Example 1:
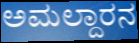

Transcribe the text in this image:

ಅಮಲ್ದಾರನ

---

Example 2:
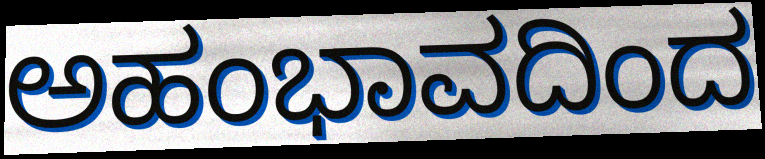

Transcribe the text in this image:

ಅಹಂಭಾವದಿಂದ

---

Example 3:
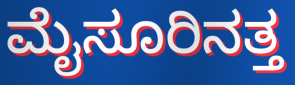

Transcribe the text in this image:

ಮೈಸೂರಿನತ್ತ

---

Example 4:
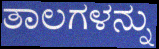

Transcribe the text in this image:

ತಾಲಗಳನ್ನು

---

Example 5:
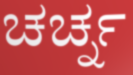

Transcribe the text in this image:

ಚರ್ಚ್ನ